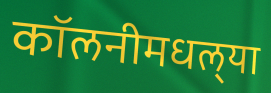
कॉलनीमधल्या